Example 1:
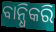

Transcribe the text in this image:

ବାନ୍ଧିକରି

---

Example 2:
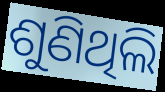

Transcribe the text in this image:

ଶୁଣିଥିଲି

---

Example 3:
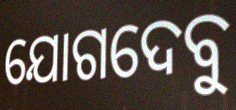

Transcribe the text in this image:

ଯୋଗଦେବୁ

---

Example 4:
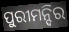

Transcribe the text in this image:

ପୁରୀମନ୍ଦିର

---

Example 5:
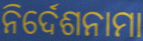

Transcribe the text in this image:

ନିର୍ଦେଶନାମା